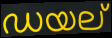
ഡയല്